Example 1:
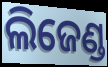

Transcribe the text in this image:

ଲିଜେଣ୍ଡ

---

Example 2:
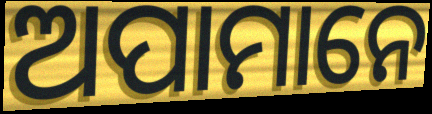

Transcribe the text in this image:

ଅପାମାନେ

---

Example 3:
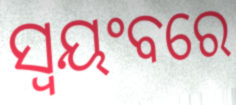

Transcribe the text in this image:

ସ୍ଵୟଂବରେ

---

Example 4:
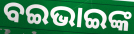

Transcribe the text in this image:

ବଇଭାଇଙ୍କ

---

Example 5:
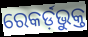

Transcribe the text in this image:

ରେକର୍ଡ଼ଭୁକ୍ତ